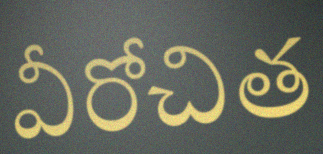
వీరోచిత